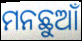
ମନଛୁଆଁ